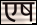
एष